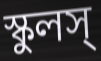
স্কুলস্